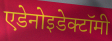
एडेनोइडेक्टॉमी